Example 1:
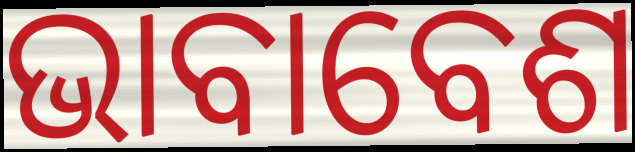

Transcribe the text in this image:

ଭାବାବେଶ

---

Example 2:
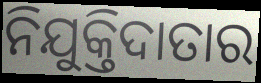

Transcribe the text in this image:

ନିଯୁକ୍ତିଦାତାର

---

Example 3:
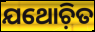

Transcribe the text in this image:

ଯଥୋଚ଼ିତ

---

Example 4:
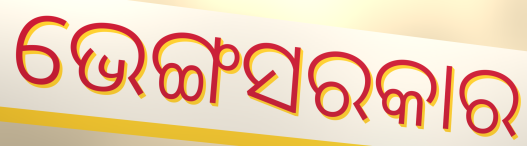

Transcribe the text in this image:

ଭେଙ୍ଗସରକାର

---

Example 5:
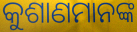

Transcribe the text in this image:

କୁଶାଣମାନଙ୍କ